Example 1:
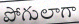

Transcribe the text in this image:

పోగులాగా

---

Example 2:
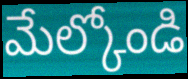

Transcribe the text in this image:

మేల్కోండి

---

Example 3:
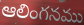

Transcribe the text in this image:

ఆలింగనము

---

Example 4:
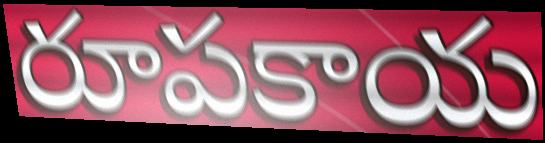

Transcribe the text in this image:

రూపకాయ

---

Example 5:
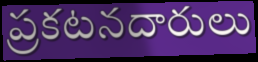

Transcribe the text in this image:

ప్రకటనదారులు